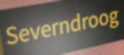
Severndroog